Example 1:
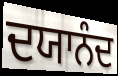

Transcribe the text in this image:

ਦਯਾਨੰਦ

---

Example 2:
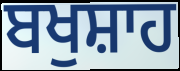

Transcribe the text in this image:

ਬਖੁਸ਼ਾਹ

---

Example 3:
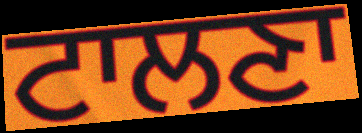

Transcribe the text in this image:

ਟਾਲਣਾ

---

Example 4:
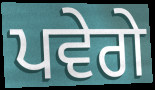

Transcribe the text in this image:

ਪਵੇਗੇ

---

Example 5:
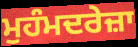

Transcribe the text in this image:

ਮੁਹੰਮਦਰੇਜ਼ਾ